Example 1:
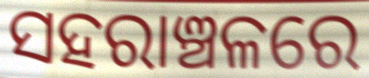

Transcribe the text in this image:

ସହରାଞ୍ଚଳରେ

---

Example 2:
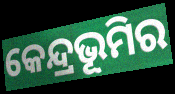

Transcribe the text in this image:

କେନ୍ଦ୍ରଭୂମିର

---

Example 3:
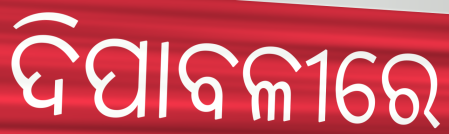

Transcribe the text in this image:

ଦିପାବଳୀରେ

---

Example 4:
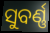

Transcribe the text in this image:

ସୁବର୍ଣ୍ଣ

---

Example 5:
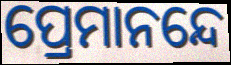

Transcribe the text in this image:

ପ୍ରେମାନନ୍ଦେ